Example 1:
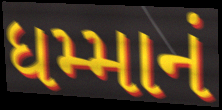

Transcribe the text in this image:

ધમ્માનં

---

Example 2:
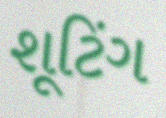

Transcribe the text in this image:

શૂટિંગ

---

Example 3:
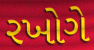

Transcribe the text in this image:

રખોગે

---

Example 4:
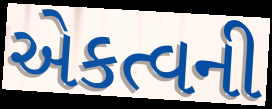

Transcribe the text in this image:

એકત્વની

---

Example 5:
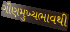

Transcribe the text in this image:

ગૌણમુખ્યભાવથી